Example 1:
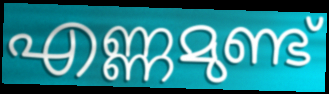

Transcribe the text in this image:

എണ്ണമുണ്ട്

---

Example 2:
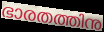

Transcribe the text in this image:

ഭാരതത്തിനു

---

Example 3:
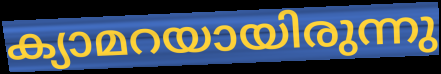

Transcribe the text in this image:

ക്യാമറയായിരുന്നു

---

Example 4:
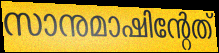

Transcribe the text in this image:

സാനുമാഷിന്റേത്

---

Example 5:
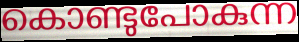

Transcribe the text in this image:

കൊണ്ടുപോകുന്ന